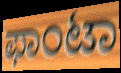
ಫಾಂಟಾ